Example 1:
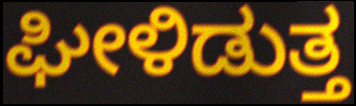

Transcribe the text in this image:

ಘೀಳಿಡುತ್ತ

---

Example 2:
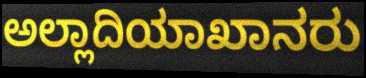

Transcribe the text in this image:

ಅಲ್ಲಾದಿಯಾಖಾನರು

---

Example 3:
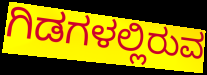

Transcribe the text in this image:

ಗಿಡಗಳಲ್ಲಿರುವ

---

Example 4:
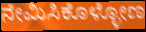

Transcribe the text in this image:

ನೇಮಿಸಿಕೊಳ್ಳೋಣ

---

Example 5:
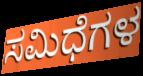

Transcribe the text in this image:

ಸಮಿಧೆಗಳ